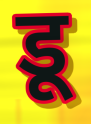
डू